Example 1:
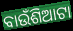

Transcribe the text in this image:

ବାଉଁଶିଆଟା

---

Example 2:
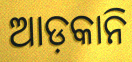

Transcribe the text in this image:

ଆଡ଼କାନି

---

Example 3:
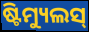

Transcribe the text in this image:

ଷ୍ଟିମ୍ୟୁଲସ୍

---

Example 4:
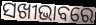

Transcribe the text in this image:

ସଖୀଭାବରେ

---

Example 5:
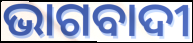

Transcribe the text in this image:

ଭାଗବାଦୀ